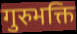
गुरुभक्ति